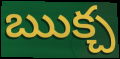
ఋక్చ